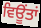
ਵਿਊਂਤਾਂ